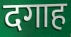
दगाह